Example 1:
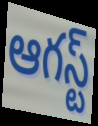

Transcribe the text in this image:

ఆగస్ట్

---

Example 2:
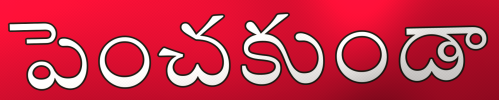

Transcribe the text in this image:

పెంచకుండా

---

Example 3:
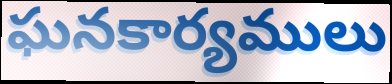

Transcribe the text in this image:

ఘనకార్యములు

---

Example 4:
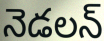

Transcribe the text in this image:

నెడలన్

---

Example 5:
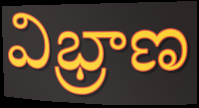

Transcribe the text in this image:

విభ్రాణ